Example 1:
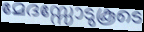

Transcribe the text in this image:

മേദസ്സോടുകൂടെ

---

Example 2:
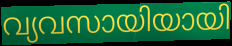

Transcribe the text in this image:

വ്യവസായിയായി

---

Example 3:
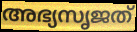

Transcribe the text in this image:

അഭ്യസൃജത്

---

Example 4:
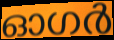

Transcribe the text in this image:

ഓഗർ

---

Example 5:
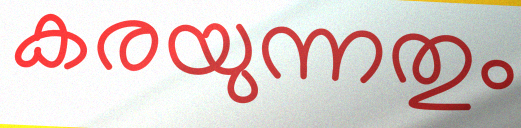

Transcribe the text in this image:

കരയുന്നതും